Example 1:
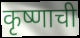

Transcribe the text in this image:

कृष्णाची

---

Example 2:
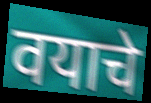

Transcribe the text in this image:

वयाचे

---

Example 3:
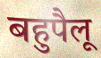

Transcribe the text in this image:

बहुपैलू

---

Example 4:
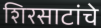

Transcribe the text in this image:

शिरसाटांचे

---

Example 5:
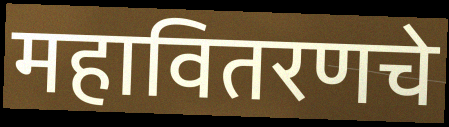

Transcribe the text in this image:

महावितरणचे